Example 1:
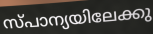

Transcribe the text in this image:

സ്പാന്യയിലേക്കു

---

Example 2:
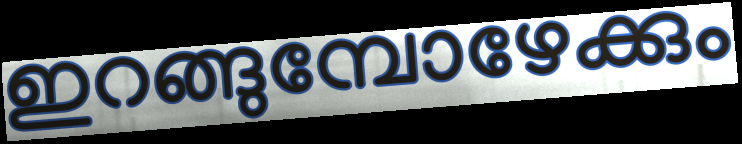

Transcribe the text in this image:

ഇറങ്ങുമ്പോഴേക്കും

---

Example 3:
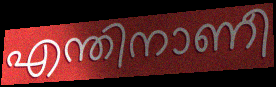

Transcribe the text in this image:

എന്തിനാണീ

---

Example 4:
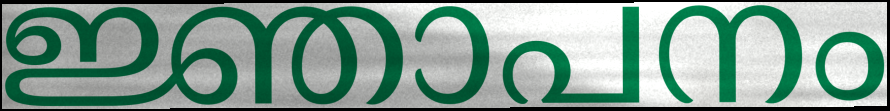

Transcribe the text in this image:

ജ്ഞാപനം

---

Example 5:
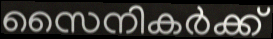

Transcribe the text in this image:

സൈനികർക്ക്